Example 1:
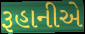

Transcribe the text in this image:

રૂહાનીએ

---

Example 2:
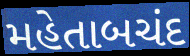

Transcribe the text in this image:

મહેતાબચંદ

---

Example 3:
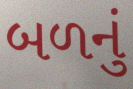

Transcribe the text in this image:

બળનું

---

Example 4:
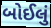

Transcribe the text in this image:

બોઈલું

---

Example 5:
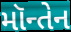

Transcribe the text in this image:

મૉન્તેન